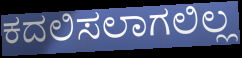
ಕದಲಿಸಲಾಗಲಿಲ್ಲ